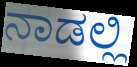
ನಾಡಲ್ಲಿ